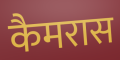
कैमरास